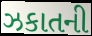
ઝકાતની